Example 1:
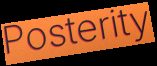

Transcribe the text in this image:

Posterity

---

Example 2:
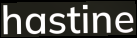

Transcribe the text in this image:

hastine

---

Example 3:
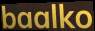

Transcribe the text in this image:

baalko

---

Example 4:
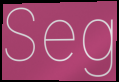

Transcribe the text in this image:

Seg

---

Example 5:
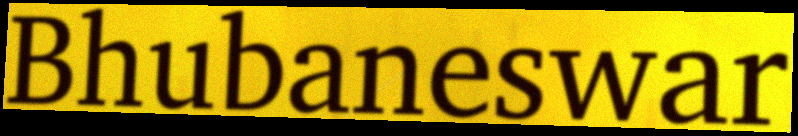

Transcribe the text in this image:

Bhubaneswar